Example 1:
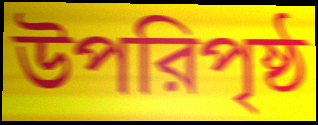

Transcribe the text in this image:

উপরিপৃষ্ঠ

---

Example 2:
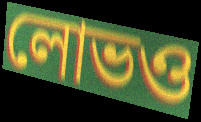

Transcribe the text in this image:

লোভও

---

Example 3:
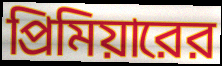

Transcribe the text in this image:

প্রিমিয়ারের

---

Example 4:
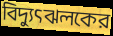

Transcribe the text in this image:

বিদ্যুৎঝলকের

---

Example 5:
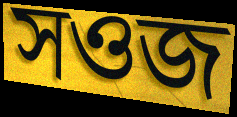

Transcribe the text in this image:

সওজ